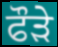
ਫੌੜੇ